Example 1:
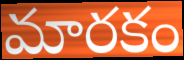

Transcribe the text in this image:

మారకం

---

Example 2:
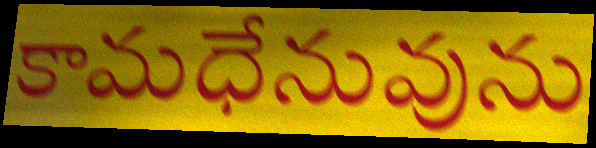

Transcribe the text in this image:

కామధేనువును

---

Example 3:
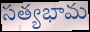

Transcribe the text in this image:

సత్యభామ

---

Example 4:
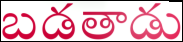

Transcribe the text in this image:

బడతాడు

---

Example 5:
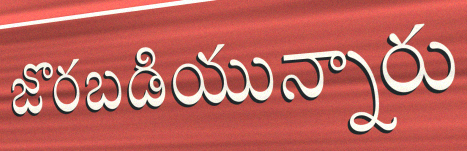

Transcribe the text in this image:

జొరబడియున్నారు